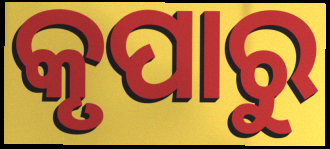
କୃପାରୁ